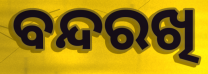
ବନ୍ଦରଖି